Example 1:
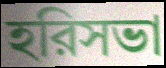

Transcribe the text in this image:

হরিসভা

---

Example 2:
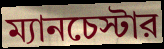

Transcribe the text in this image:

ম্যানচেস্টার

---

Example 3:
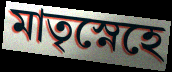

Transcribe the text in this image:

মাতৃস্নেহে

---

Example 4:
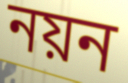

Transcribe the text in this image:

নয়ন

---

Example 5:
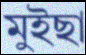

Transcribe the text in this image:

মুইছা